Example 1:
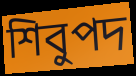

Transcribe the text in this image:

শিবুপদ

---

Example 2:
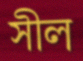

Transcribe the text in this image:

সীল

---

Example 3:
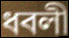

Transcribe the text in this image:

ধবলী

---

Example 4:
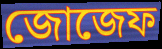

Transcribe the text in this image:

জোজেফ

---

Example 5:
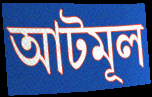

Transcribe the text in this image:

আটমূল